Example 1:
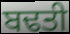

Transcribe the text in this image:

ਬਢਤੀ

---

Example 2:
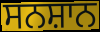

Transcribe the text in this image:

ਸਨਸ਼ਾਨ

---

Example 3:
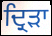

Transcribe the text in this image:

ਦ੍ਰਿੜਾ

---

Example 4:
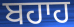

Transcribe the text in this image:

ਬਹਾਹ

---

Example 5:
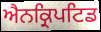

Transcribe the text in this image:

ਐਨਕ੍ਰਿਪਟਿਡ